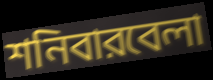
শনিবারবেলা